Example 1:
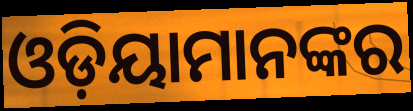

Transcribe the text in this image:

ଓଡ଼ିୟାମାନଙ୍କର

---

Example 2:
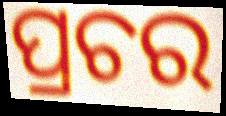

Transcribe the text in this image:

ପ୍ରଚର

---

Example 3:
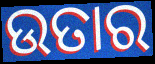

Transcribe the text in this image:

ଉତାର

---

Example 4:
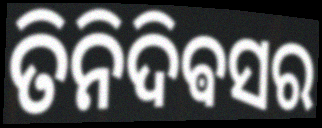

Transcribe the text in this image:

ତିନିଦିଵସର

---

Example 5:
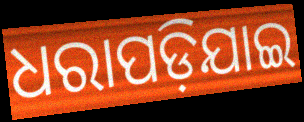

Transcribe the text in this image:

ଧରାପଡ଼ିଯାଇ